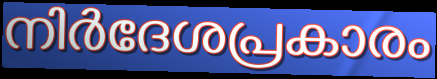
നിർദേശപ്രകാരം